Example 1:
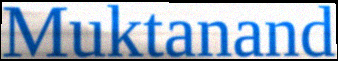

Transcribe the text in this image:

Muktanand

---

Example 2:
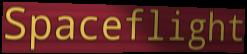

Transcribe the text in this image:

Spaceflight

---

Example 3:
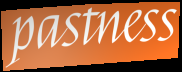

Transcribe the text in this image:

pastness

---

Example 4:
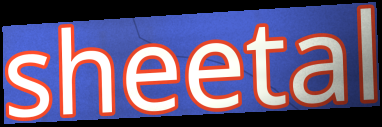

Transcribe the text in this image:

sheetal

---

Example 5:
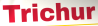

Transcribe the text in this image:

Trichur